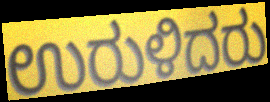
ಉರುಳಿದರು